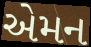
એમન